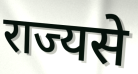
राज्यसे